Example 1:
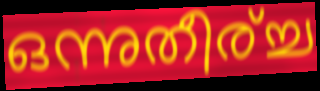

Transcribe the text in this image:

ഒന്നുതീര്ച്ച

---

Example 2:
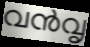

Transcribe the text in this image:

വൻവൃ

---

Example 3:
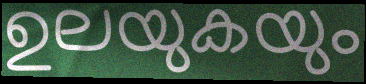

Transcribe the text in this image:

ഉലയുകയും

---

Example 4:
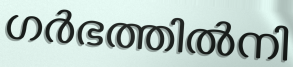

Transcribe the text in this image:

ഗർഭത്തിൽനി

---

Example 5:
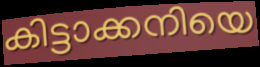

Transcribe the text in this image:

കിട്ടാക്കനിയെ